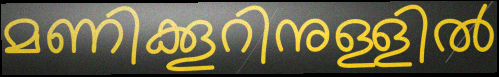
മണിക്കൂറിനുള്ളിൽ